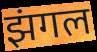
झंगल